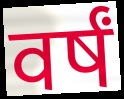
वर्षं